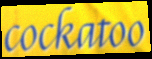
cockatoo